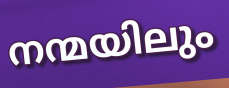
നന്മയിലും